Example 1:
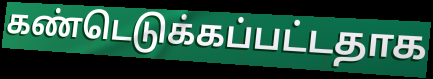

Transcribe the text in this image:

கண்டெடுக்கப்பட்டதாக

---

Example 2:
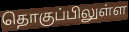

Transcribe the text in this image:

தொகுப்பிலுள்ள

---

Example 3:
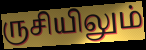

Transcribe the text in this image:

ருசியிலும்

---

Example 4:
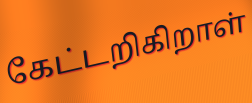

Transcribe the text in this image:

கேட்டறிகிறாள்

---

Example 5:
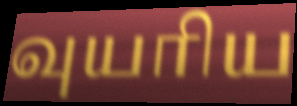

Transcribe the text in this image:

வுயரிய